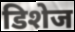
डिशेज